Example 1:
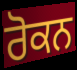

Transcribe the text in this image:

ਰੋਕਨ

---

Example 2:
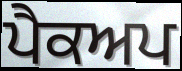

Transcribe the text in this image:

ਪੈਕਅਪ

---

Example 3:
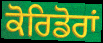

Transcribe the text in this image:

ਕੋਰਿਡੋਰਾਂ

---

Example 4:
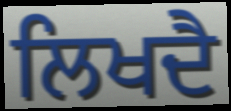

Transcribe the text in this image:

ਲਿਖਦੈ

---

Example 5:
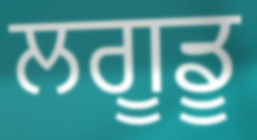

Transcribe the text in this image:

ਲਗੂਡੂ